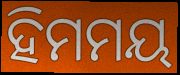
ହିମମୟ